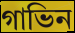
গাভিন